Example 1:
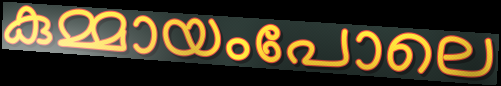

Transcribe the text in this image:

കുമ്മായംപോലെ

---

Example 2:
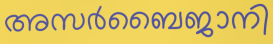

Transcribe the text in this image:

അസർബൈജാനി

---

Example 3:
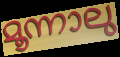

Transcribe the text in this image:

മൂന്നാലു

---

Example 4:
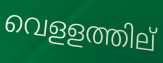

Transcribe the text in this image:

വെളളത്തില്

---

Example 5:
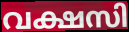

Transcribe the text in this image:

വക്ഷസി